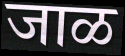
जाळ